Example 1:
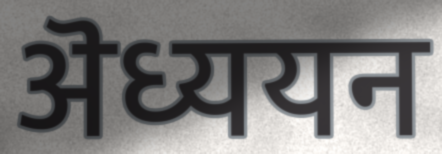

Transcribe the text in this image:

ऄध्ययन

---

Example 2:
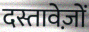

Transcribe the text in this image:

दस्तावेज़ों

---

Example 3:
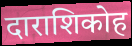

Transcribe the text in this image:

दाराशिकोह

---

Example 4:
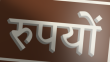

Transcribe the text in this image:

रुपयों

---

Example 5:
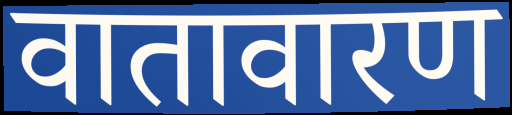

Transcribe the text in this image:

वातावारण